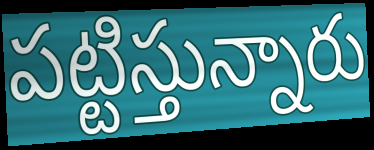
పట్టిస్తున్నారు